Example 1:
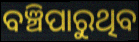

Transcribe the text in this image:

ବଞ୍ଚିପାରୁଥିବ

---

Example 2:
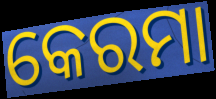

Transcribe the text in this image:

କେରମା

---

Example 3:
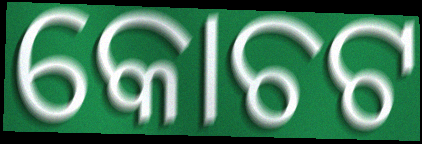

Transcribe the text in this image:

କୋଚଟ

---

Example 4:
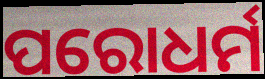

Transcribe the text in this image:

ପରୋଧର୍ମ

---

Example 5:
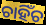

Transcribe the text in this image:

ଚାହିଁଚ